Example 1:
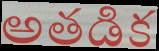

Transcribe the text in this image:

అతడిక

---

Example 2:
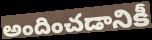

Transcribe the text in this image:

అందించడానికీ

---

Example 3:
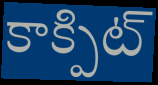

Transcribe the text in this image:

కాక్పిట్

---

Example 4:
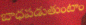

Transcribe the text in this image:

బాధపడుతుంటాం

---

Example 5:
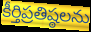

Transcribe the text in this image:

కీర్తిప్రతిష్ఠలను